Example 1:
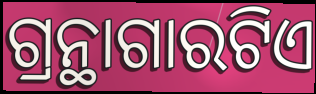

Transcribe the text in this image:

ଗ୍ରନ୍ଥାଗାରଟିଏ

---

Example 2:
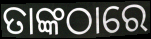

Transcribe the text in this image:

ତାଙ୍କଠାରେ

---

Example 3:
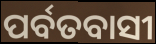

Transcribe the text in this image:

ପର୍ବତବାସୀ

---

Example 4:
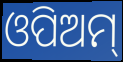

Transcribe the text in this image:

ଓପିଅମ୍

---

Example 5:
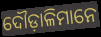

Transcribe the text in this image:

ଦୌଡ଼ାଳିମାନେ